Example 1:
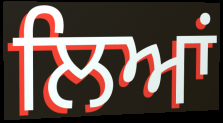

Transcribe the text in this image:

ਲਿਆਂ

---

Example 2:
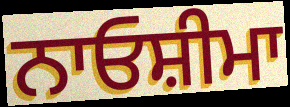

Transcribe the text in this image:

ਨਾਓਸ਼ੀਮਾ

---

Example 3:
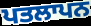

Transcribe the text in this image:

ਪਤਲਾਪਨ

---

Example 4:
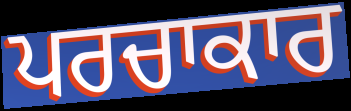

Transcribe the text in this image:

ਪਰਚਾਕਾਰ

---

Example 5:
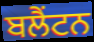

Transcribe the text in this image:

ਬਲੈਂਟਨ